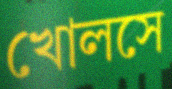
খোলসে